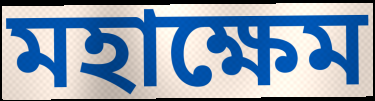
মহাক্ষেম